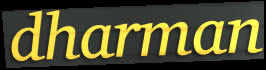
dharman